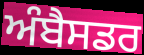
ਅੰਬੈਸਡਰ